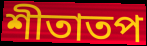
শীতাতপ